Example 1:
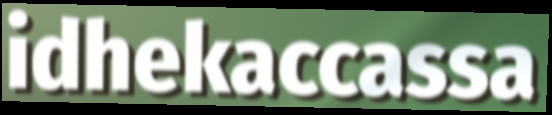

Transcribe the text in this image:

idhekaccassa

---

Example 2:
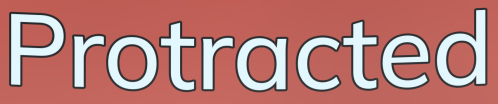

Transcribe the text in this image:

Protracted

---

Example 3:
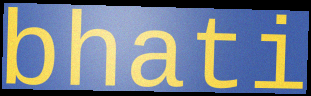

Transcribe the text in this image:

bhati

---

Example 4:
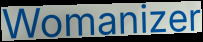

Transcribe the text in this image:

Womanizer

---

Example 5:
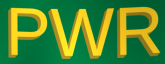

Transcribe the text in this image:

PWR